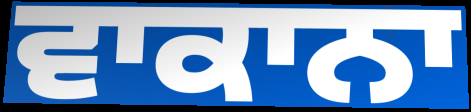
ਵਾਕਾਨਾ